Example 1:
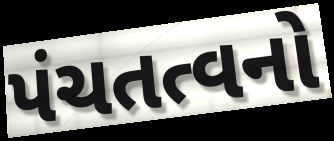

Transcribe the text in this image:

પંચતત્વનો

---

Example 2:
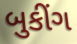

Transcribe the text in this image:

બુકીંગ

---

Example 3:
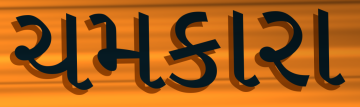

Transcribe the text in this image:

ચમકારા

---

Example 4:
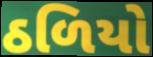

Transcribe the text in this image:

ઠળિયો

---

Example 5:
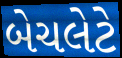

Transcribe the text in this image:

બેચલેટે